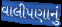
વાલીપણાનું